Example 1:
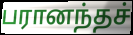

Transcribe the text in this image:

பரானந்தச்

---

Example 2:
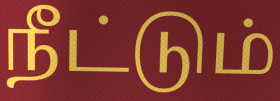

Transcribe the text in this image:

நீட்டும்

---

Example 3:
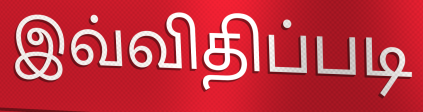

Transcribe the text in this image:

இவ்விதிப்படி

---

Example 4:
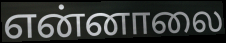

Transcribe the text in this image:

என்னாலை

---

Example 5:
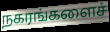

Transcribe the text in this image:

நகரங்களைச்